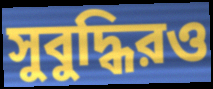
সুবুদ্ধিরও